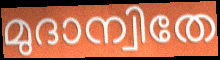
മുദാന്വിതേ